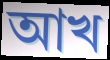
আখ